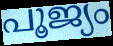
പൂജ്യം